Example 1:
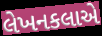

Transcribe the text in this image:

લેખનકલાએ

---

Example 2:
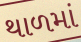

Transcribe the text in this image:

થાળમાં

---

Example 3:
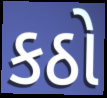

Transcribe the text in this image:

કઠો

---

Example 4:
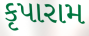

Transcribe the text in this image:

કૃપારામ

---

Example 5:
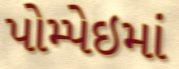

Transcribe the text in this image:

પોમ્પેઇમાં